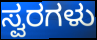
ಸ್ವರಗಳು